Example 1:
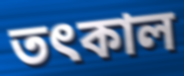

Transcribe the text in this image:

তৎকাল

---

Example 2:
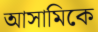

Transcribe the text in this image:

আসামিকে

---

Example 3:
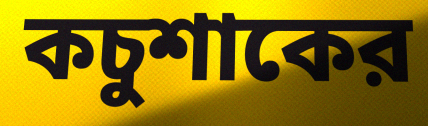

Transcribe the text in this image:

কচুশাকের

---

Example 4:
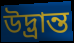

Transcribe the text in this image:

উদ্ভ্রান্ত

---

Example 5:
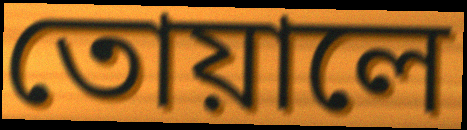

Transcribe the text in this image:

তোয়ালে